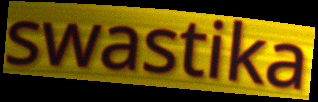
swastika